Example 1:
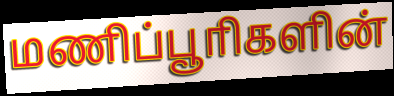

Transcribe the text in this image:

மணிப்பூரிகளின்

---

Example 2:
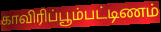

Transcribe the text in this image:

காவிரிப்பூம்பட்டிணம்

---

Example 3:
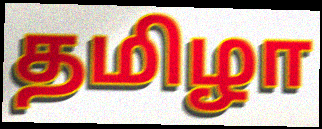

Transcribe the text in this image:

தமிழா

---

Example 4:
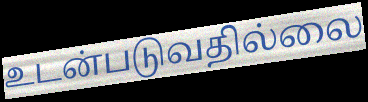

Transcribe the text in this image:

உடன்படுவதில்லை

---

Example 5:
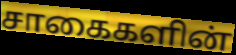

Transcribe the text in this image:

சாகைகளின்